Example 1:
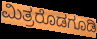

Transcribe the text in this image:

ಮಿತ್ರರೊಡಗೂಡಿ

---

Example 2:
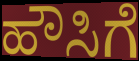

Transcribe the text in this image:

ಹೌಸಿಗೆ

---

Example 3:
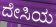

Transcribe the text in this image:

ದೇಸಿಯ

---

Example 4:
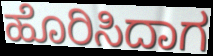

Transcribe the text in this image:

ಹೊರಿಸಿದಾಗ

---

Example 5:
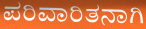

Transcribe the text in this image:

ಪರಿವಾರಿತನಾಗಿ